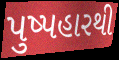
પુષ્પહારથી